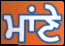
ਮਾਂਣੇ